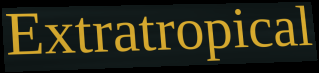
Extratropical